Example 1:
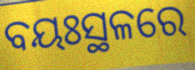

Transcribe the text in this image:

ବୟଃସ୍ଥଳରେ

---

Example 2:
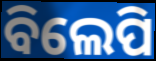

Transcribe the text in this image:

ବିଲେପି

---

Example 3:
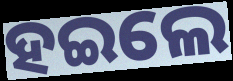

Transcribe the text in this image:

ହଇଲେ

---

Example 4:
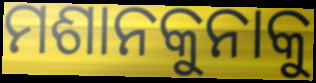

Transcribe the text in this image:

ମଶାନକୁନାକୁ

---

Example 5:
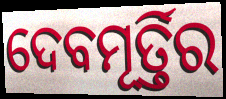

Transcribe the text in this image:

ଦେବମୂର୍ତ୍ତିର